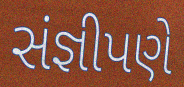
સંજ્ઞીપણે